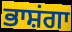
ਭਾਸ਼ਂਗਾ